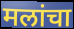
मलांचा